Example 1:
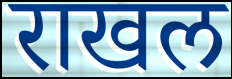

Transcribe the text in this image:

राखल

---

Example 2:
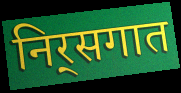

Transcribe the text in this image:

निर्सगात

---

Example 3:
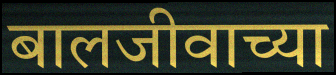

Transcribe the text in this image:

बालजीवाच्या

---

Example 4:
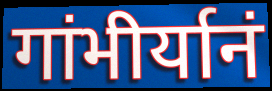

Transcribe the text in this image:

गांभीर्यानं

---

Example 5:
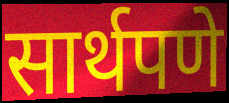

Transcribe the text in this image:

सार्थपणे